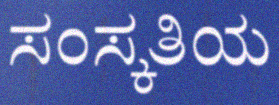
ಸಂಸ್ಕತಿಯ